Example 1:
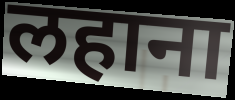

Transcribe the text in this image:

लहाना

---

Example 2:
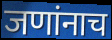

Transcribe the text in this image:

जणांनाच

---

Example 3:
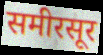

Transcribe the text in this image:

समीरसूर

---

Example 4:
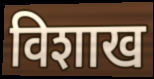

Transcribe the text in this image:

विशाख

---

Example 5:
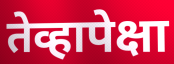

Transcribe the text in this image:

तेव्हापेक्षा